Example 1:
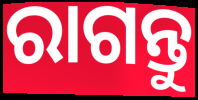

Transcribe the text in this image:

ରାଗନ୍ତୁ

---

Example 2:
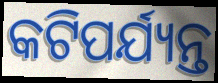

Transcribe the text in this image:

କଟିପର୍ଯ୍ୟନ୍ତ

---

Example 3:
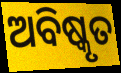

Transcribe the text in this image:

ଅବିଷ୍କୃତ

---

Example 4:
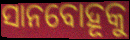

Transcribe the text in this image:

ସାନବୋହୂକୁ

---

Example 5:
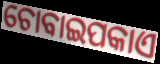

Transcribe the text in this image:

ଚୋବାଇପକାଏ